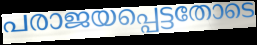
പരാജയപ്പെട്ടതോടെ